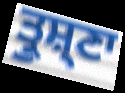
ਤ੍ਰੁਸ਼੍ਣਾ